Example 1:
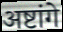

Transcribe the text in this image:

अष्टांगे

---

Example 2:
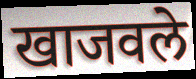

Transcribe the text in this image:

खाजवले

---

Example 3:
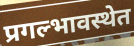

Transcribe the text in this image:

प्रगल्भावस्थेत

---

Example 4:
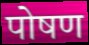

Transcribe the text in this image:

पोषण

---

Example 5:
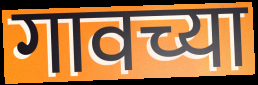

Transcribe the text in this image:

गावच्या